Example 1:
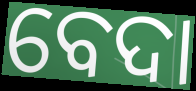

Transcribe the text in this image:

ବେଦା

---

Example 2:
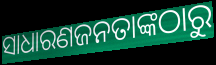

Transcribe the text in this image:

ସାଧାରଣଜନତାଙ୍କଠାରୁ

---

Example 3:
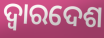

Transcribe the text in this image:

ଦ୍ଵାରଦେଶ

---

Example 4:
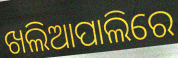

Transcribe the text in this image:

ଖଲିଆପାଲିରେ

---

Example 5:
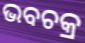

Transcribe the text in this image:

ଭବଚକ୍ର